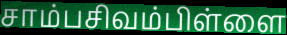
சாம்பசிவம்பிள்ளை